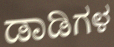
ಡಾಡಿಗಳ